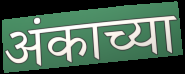
अंकाच्या